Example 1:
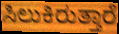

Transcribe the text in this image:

ಸಿಲುಕಿರುತ್ತಾರೆ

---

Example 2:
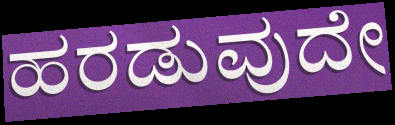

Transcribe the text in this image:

ಹರಡುವುದೇ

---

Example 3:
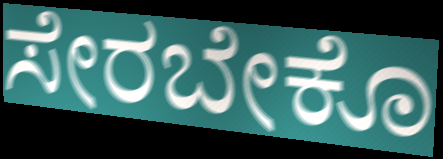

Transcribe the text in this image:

ಸೇರಬೇಕೊ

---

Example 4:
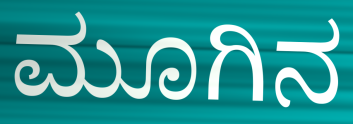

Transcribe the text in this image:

ಮೂಗಿನ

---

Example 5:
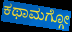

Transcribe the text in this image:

ಕಥಾಮಗ್ಗೋ